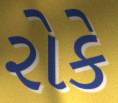
રોકે